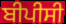
ਬੀਪੀਸੀ